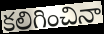
కలిగించినా